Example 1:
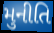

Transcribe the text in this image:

મુનીતિ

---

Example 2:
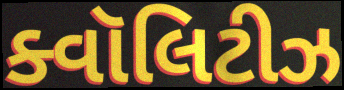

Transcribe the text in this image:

ક્વૉલિટીઝ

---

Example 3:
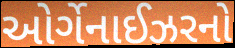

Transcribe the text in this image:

ઓર્ગેનાઈઝરનો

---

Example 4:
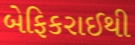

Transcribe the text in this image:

બેફિકરાઈથી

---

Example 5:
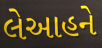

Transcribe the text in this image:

લેઆહને